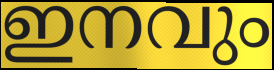
ഇനവും